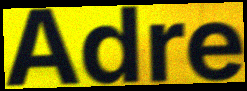
Adre